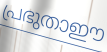
പ്രഭുതാഈ